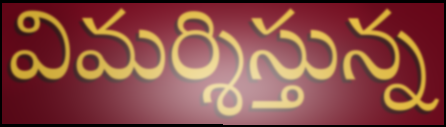
విమర్శిస్తున్న